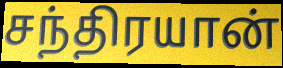
சந்திரயான்